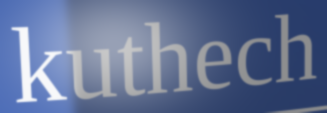
kuthech